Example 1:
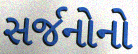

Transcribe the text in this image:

સર્જનોનો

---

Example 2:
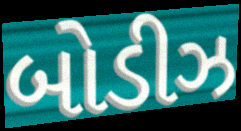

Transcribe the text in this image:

બોડીઝ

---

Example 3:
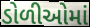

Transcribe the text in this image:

ડોળીઓમાં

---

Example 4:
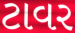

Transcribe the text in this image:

ટાવર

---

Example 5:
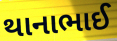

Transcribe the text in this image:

થાનાભાઈ